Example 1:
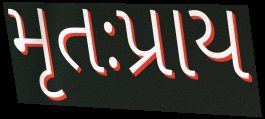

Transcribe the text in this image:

મૃતઃપ્રાય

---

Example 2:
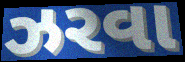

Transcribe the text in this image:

ઝરવા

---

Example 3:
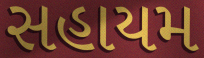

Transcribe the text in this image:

સહાયમ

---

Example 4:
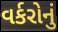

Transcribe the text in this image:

વર્કરોનું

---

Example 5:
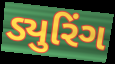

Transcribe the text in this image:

ડ્યુરિંગ